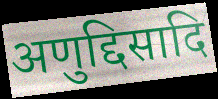
अणुद्दिसादि